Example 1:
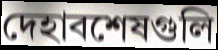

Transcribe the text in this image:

দেহাবশেষগুলি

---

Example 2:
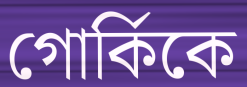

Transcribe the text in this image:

গোর্কিকে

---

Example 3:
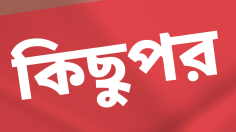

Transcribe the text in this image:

কিছুপর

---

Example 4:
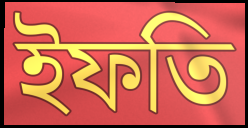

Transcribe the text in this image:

ইফতি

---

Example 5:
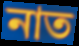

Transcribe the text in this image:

নাত